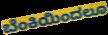
ಬೆಂಕಿಯಿಂದಲೂ